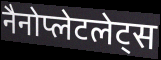
नैनोप्लेटलेट्स